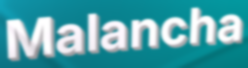
Malancha